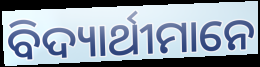
ବିଦ୍ୟାର୍ଥୀମାନେ